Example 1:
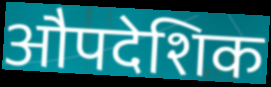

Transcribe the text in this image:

औपदेशिक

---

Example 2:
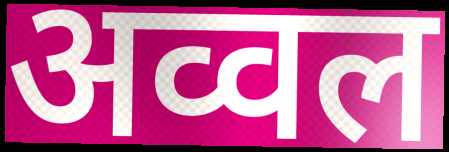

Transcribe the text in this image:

अव्वल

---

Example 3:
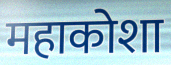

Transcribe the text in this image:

महाकोशा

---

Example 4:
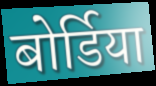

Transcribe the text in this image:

बोर्डिया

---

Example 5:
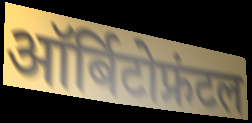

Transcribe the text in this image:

ऑर्बिटोफ्रंटल